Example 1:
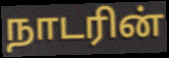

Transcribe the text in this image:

நாடரின்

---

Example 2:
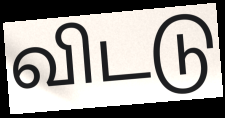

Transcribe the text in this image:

விடடு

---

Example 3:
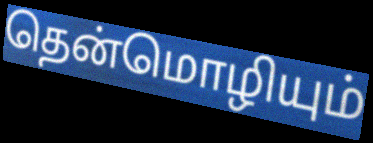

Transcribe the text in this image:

தென்மொழியும்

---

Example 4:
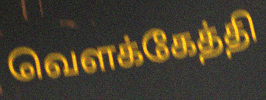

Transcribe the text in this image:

வெளக்கேத்தி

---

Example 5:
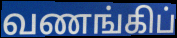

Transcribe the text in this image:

வணங்கிப்